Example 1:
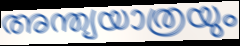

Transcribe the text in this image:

അന്ത്യയാത്രയും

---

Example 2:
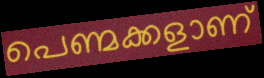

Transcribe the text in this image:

പെണ്മക്കളാണ്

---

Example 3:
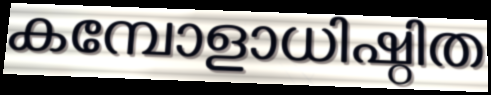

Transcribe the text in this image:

കമ്പോളാധിഷ്ഠിത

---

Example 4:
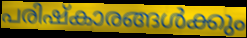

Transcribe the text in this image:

പരിഷ്കാരങ്ങൾക്കും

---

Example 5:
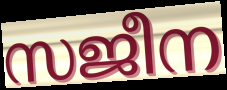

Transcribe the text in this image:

സജീന